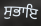
ਸੁਭਾਇ